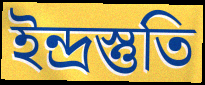
ইন্দ্রস্তুতি